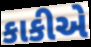
કાકીએ